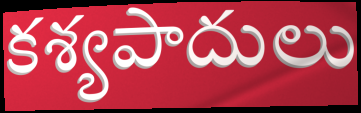
కశ్యపాదులు